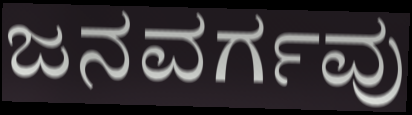
ಜನವರ್ಗವು